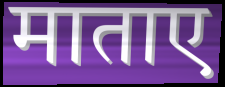
माताए